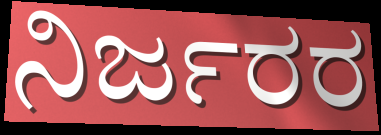
ನಿರ್ಜರರ